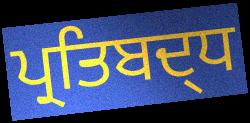
ਪ੍ਰਤਿਬਦ੍ਧ